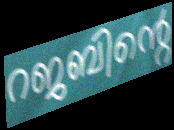
റജബിന്റെ